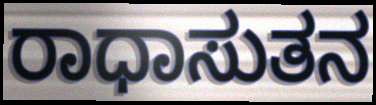
ರಾಧಾಸುತನ